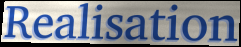
Realisation